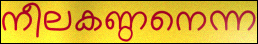
നീലകണ്ഠനെന്ന